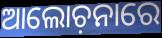
ଆଲୋଚ଼ନାରେ